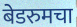
बेडरुमचा